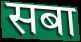
सबा